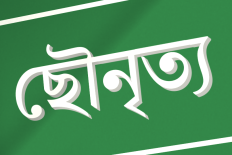
ছৌনৃত্য